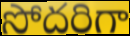
సోదరిగా